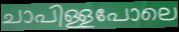
ചാപിള്ളപോലെ